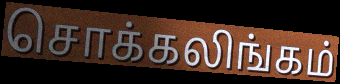
சொக்கலிங்கம்